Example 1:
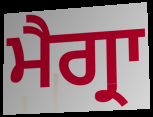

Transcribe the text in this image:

ਮੈਗ੍ਰਾ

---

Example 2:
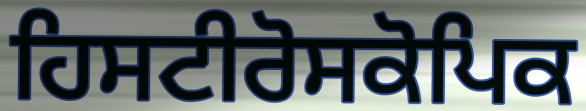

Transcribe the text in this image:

ਹਿਸਟੀਰੋਸਕੋਪਿਕ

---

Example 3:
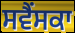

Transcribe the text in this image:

ਸਵੈਂਸਕਾ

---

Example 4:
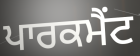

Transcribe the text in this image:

ਪਾਰਕਮੈਂਟ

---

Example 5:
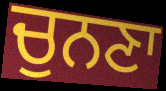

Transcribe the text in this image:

ਚੁਨਣਾ